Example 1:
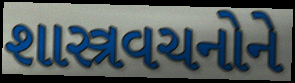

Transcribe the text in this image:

શાસ્ત્રવચનોને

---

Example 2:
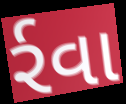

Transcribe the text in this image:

ર્રવા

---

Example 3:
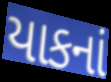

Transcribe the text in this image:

યાકનાં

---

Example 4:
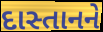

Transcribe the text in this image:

દાસ્તાનને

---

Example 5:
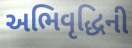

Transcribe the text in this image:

અભિવૃદ્ધિની